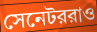
সেনেটররাও